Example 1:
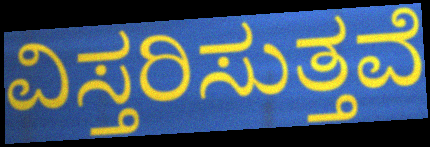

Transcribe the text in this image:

ವಿಸ್ತರಿಸುತ್ತವೆ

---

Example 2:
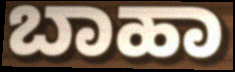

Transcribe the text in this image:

ಬಾಹಾ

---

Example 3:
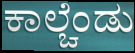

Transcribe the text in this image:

ಕಾಲ್ಚೆಂಡು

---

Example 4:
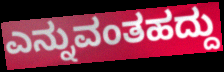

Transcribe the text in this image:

ಎನ್ನುವಂತಹದ್ದು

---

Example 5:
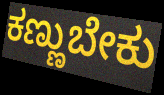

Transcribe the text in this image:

ಕಣ್ಣುಬೇಕು